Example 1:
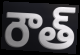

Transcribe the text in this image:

రౌత్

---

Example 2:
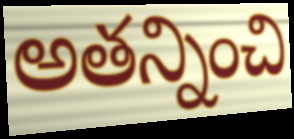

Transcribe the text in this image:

అతన్నించి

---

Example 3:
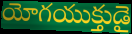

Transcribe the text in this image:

యోగయుక్తుడై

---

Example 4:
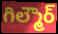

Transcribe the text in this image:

గిల్మౌర్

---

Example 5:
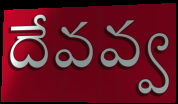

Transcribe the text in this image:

దేవవ్వ